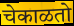
चेकाळतो